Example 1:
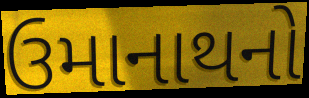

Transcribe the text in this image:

ઉમાનાથનો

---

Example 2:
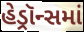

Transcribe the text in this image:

હેડ્રૉન્સમાં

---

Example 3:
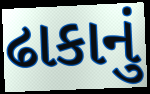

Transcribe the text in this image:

ઢાકાનું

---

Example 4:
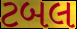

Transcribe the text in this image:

ટબલ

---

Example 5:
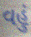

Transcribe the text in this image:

વહું